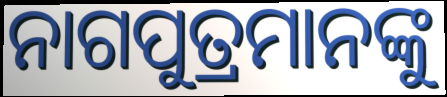
ନାଗପୁତ୍ରମାନଙ୍କୁ